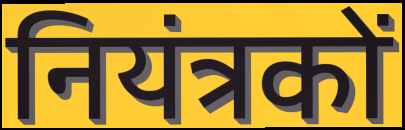
नियंत्रकों